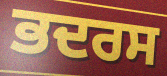
ਭਦਰਸ